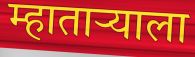
म्हाताऱ्याला